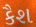
કૈશ